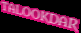
TALOOKDAR